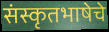
संस्कृतभाषेचे